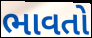
ભાવતો